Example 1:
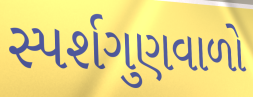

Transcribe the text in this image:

સ્પર્શગુણવાળો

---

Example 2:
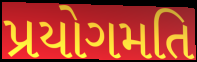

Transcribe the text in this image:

પ્રયોગમતિ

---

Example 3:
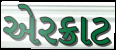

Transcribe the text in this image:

એરક્રાટ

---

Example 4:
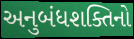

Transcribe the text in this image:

અનુબંધશક્તિનો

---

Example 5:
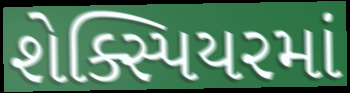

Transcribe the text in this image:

શેક્સ્પિયરમાં